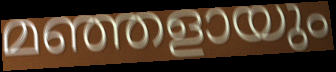
മഞ്ഞളായും